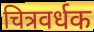
चित्रवर्धक